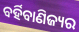
ବର୍ହିବାଣିଜ୍ୟର